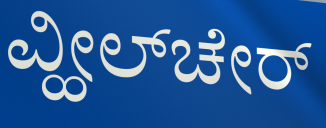
ವ್ಹೀಲ್‌ಚೇರ್